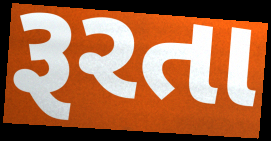
રૂરતા